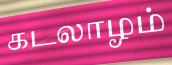
கடலாழம்